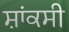
ਸ਼ਾਂਕਸੀ